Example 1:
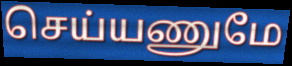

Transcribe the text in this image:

செய்யணுமே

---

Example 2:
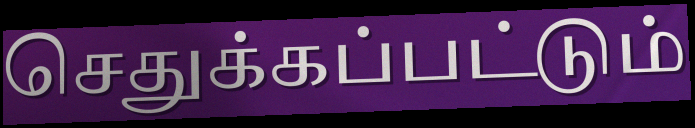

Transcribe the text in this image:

செதுக்கப்பட்டும்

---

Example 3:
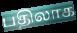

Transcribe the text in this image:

பதிலாக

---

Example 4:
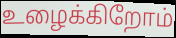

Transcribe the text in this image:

உழைக்கிறோம்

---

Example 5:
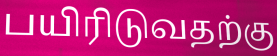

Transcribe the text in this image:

பயிரிடுவதற்கு